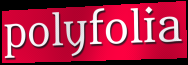
polyfolia